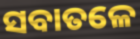
ସବାତଳେ